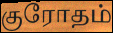
குரோதம்